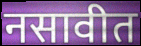
नसावीत